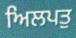
ਅਿਲਪਤੁ